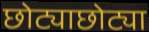
छोट्याछोट्या